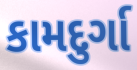
કામદુર્ગા